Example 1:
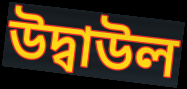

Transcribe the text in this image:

উদ্বাউল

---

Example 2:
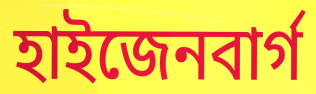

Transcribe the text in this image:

হাইজেনবাৰ্গ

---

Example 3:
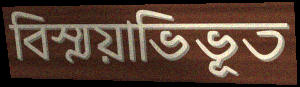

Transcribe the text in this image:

বিস্ময়াভিভূত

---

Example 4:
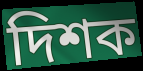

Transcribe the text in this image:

দিশক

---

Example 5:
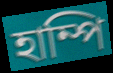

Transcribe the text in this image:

হাম্পি